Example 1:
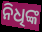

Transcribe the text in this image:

ନିଧିଙ୍କ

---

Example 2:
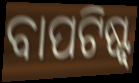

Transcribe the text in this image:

ବାପଟିଷ୍ଟ୍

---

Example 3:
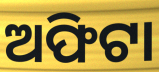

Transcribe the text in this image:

ଅଫିଟା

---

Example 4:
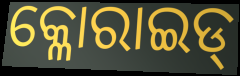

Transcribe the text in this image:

କ୍ଳୋରାଇଡ୍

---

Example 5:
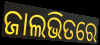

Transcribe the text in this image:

ଜାଲଭିତରେ